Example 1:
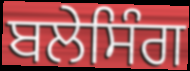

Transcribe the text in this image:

ਬਲੇਸਿੰਗ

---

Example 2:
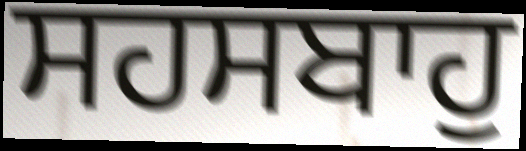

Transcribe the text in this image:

ਸਹਸਬਾਹੁ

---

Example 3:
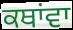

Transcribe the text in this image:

ਕਥਾਂਵਾ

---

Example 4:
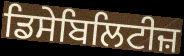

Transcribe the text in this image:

ਡਿਸੇਬਿਲਿਟੀਜ਼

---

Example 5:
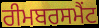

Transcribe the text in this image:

ਰੀਮਬਰਸਮੈਂਟ